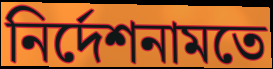
নির্দেশনামতে